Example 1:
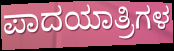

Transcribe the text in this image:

ಪಾದಯಾತ್ರಿಗಳ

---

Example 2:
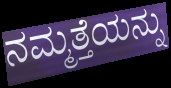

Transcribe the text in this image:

ನಮ್ಮತ್ತೆಯನ್ನು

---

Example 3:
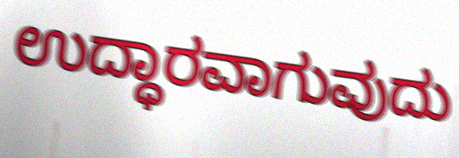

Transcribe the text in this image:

ಉದ್ಧಾರವಾಗುವುದು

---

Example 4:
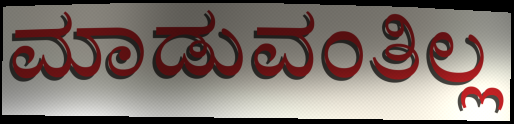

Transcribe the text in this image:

ಮಾಡುವಂತಿಲ್ಲ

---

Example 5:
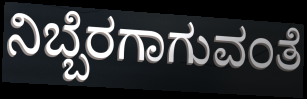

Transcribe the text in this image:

ನಿಬ್ಬೆರಗಾಗುವಂತೆ